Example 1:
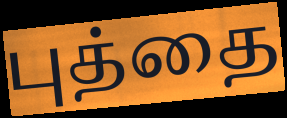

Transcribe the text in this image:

புத்தை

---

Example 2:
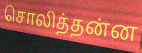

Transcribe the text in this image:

சொலித்தன்ன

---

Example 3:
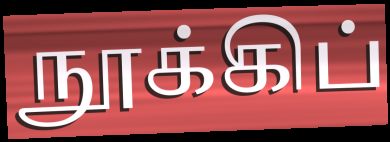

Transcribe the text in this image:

நூக்கிப்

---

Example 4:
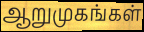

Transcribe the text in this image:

ஆறுமுகங்கள்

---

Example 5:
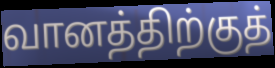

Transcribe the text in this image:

வானத்திற்குத்